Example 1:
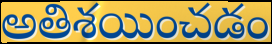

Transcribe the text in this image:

అతిశయించడం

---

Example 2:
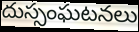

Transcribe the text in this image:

దుస్సంఘటనలు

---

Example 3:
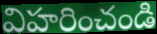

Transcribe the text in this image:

విహరించండి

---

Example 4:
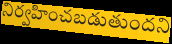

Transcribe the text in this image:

నిర్వహించబడుతుందని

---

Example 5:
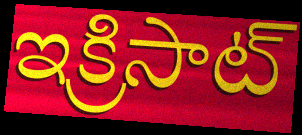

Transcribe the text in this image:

ఇక్రిసాట్